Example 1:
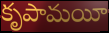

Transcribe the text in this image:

కృపామయీ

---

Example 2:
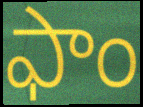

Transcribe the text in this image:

ఫాం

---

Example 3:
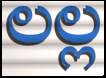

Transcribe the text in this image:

లల్ల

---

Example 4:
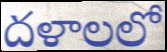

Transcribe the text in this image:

దళాలలో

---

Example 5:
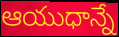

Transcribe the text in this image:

ఆయుధాన్నే